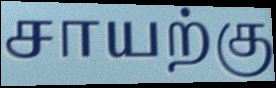
சாயற்கு